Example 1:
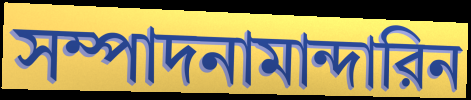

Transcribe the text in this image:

সম্পাদনামান্দারিন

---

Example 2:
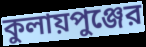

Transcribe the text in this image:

কুলায়পুঞ্জের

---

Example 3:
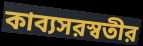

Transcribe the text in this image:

কাব্যসরস্বতীর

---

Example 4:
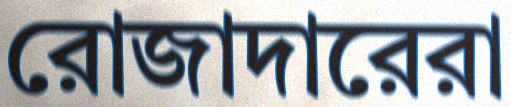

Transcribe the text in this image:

রোজাদারেরা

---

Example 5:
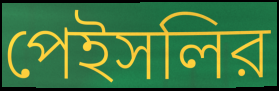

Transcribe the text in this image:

পেইসলির